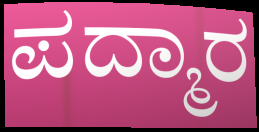
ಪದ್ಮಾರ